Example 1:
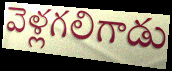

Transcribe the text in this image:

వెళ్లగలిగాడు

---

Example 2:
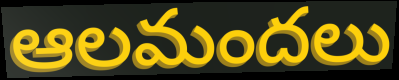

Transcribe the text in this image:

ఆలమందలు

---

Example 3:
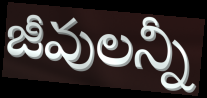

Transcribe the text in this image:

జీవులన్నీ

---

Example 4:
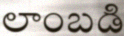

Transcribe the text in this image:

లాంబడి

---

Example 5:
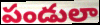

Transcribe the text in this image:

పండులా